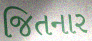
જિતનાર